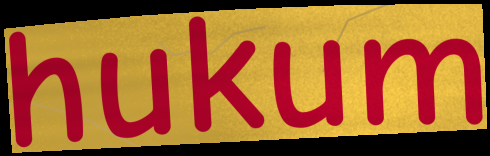
hukum